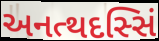
અનત્થદસ્સિં